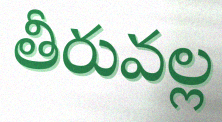
తీరువల్ల